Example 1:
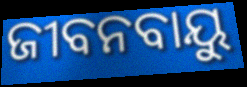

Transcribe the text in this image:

ଜୀବନବାୟୁ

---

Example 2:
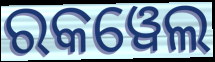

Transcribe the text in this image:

ରକୱେଲ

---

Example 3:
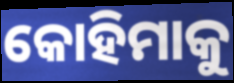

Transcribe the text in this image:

କୋହିମାକୁ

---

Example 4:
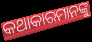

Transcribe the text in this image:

କଥାକାରମାନଙ୍କୁ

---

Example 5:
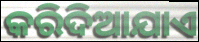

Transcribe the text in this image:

କରିଦିଆଯାଏ